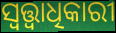
ସ୍ବତ୍ତ୍ବାଧିକାରୀ